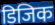
डिजिक